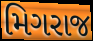
મિગરાજ